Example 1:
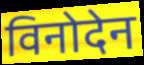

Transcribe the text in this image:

विनोदेन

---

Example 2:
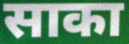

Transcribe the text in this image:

साका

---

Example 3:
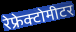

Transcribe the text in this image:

रेफ्रेक्टोमीटर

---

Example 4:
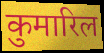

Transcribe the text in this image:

कुमारिल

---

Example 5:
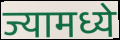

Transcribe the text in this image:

ज्यामध्ये